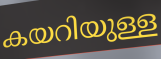
കയറിയുള്ള